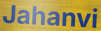
Jahanvi